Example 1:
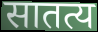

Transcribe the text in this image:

सातत्य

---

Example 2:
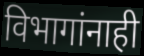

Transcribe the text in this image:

विभागांनाही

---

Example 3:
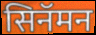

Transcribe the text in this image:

सिनॅमन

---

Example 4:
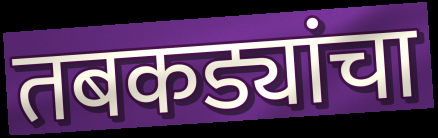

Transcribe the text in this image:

तबकड्यांचा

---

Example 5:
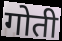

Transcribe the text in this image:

गोती